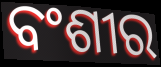
ବଂଶୀର